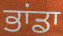
ਭਾਂਡਾ